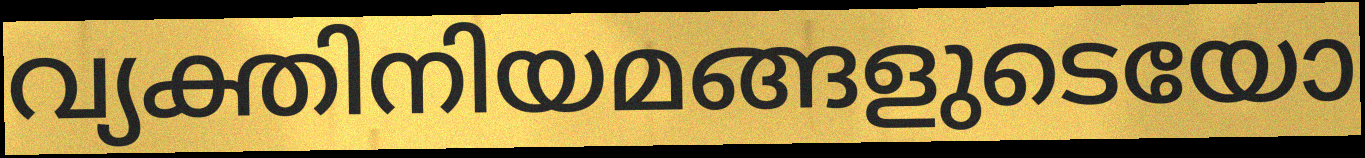
വ്യക്തിനിയമങ്ങളുടെയോ